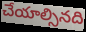
చేయాల్సినది